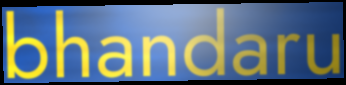
bhandaru